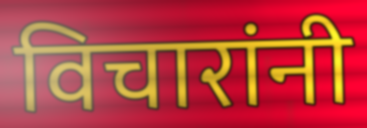
विचारांनी